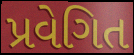
પ્રવેગિત